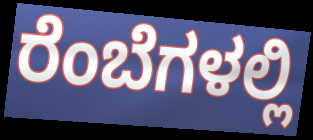
ರೆಂಬೆಗಳಲ್ಲಿ